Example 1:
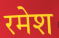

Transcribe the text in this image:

रमेश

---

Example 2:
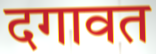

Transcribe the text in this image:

दगावत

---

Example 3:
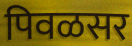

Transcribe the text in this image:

पिवळसर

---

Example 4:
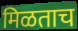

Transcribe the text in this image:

मिळताच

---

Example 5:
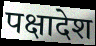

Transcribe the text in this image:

पक्षादेश